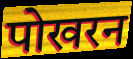
पोखरन